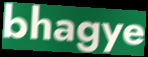
bhagye